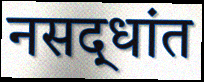
नसद्धांत